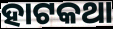
ହାଟକଥା